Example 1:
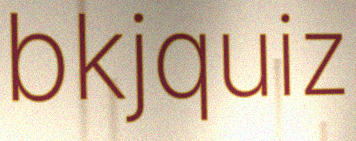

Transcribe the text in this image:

bkjquiz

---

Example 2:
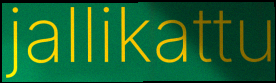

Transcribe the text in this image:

jallikattu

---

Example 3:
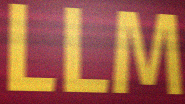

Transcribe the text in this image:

LLM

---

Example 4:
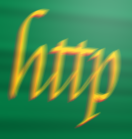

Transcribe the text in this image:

http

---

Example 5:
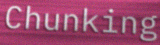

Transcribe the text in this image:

Chunking